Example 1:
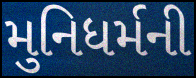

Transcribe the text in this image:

મુનિધર્મની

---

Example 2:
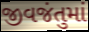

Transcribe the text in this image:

જીવજંતુમાં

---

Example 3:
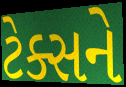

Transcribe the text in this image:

ટેક્સને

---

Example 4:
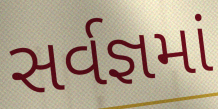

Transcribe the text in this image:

સર્વજ્ઞમાં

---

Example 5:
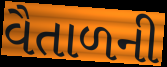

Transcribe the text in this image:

વૈતાળની